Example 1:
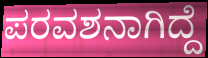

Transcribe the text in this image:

ಪರವಶನಾಗಿದ್ದೆ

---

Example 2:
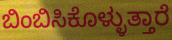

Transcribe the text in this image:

ಬಿಂಬಿಸಿಕೊಳ್ಳುತ್ತಾರೆ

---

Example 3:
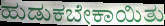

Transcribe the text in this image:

ಹುಡುಕಬೇಕಾಯಿತು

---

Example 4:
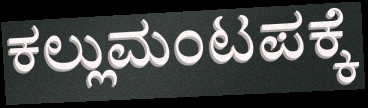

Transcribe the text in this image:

ಕಲ್ಲುಮಂಟಪಕ್ಕೆ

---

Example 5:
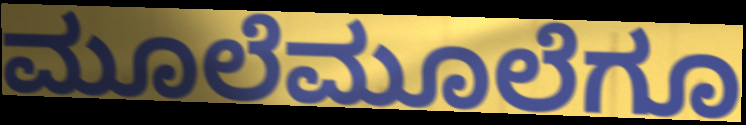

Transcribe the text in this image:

ಮೂಲೆಮೂಲೆಗೂ